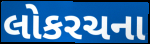
લોકરચના